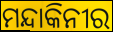
ମନ୍ଦାକିନୀର